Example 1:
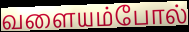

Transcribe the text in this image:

வளையம்போல்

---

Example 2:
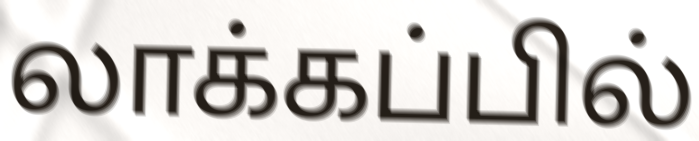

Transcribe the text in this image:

லாக்கப்பில்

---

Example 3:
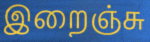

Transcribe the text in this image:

இறைஞ்சு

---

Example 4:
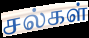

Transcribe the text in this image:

சல்கள்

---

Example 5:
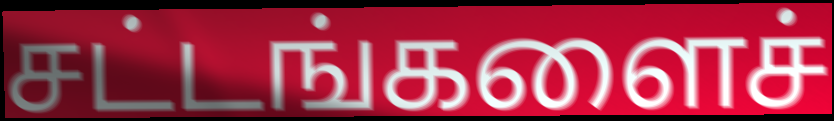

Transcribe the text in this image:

சட்டங்களைச்